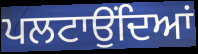
ਪਲਟਾਉਂਦਿਆਂ